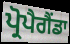
ਪ੍ਰੋਪੈਗੈਂਡਾ